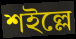
শইল্লে